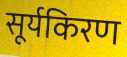
सूर्यकिरण